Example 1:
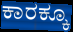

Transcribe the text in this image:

ಕಾರಕ್ಕೂ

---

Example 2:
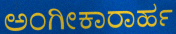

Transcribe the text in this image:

ಅಂಗೀಕಾರಾರ್ಹ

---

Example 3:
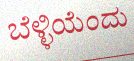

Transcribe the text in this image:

ಬೆಳ್ಳಿಯೆಂದು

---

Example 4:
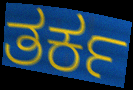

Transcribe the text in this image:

ತರ್ಕ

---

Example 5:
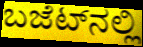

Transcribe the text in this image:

ಬಜೆಟ್‌ನಲ್ಲಿ